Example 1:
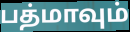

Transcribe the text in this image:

பத்மாவும்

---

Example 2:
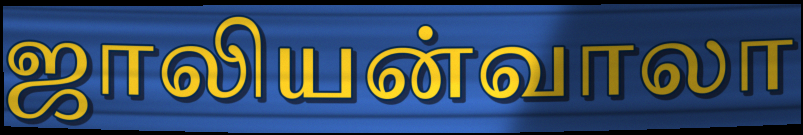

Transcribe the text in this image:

ஜாலியன்வாலா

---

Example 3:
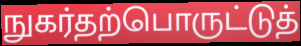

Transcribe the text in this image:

நுகர்தற்பொருட்டுத்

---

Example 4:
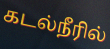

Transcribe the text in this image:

கடல்நீரில்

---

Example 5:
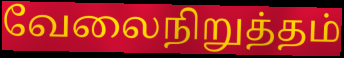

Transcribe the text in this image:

வேலைநிறுத்தம்